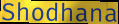
Shodhana